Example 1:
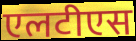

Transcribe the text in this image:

एलटीएस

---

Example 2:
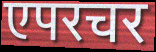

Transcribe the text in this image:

एपरचर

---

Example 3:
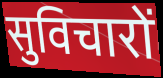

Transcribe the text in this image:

सुविचारों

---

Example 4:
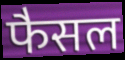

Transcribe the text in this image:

फैसल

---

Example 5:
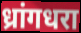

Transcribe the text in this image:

ध्रांगधरा